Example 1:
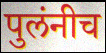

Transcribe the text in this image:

पुलंनीच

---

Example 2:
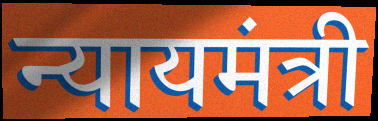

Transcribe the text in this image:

न्यायमंत्री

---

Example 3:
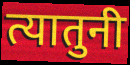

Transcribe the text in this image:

त्यातुनी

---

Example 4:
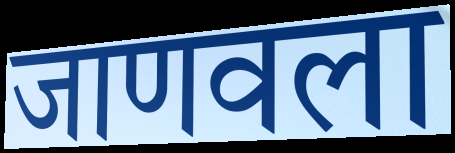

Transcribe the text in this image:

जाणवला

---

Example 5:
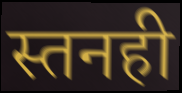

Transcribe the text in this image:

स्तनही